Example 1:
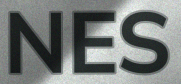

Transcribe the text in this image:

NES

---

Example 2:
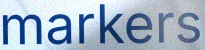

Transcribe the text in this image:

markers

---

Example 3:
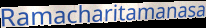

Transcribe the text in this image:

Ramacharitamanasa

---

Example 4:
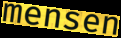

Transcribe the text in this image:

mensen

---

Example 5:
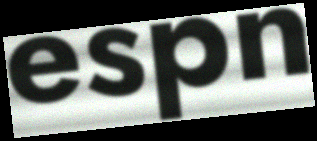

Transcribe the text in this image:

espn